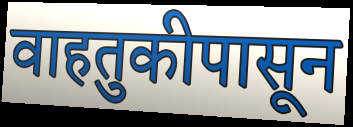
वाहतुकीपासून